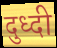
दुध्दी